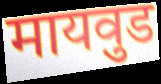
मायवुड